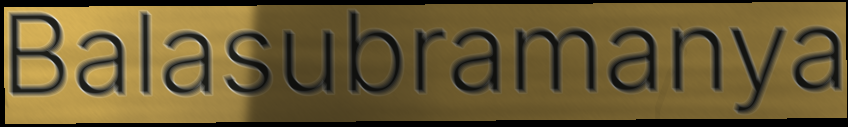
Balasubramanya